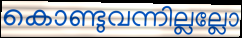
കൊണ്ടുവന്നില്ലല്ലോ